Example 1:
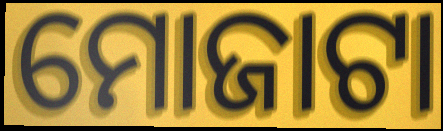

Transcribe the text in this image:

ମୋଜାଟା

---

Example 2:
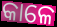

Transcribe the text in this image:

କାଳେ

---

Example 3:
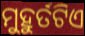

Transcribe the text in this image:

ମୁହୁର୍ତଟିଏ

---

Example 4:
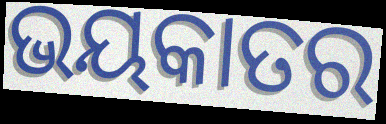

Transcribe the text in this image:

ଭୟକାତର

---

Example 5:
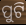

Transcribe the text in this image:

ପୁଟି